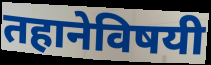
तहानेविषयी